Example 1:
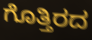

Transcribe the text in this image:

ಗೊತ್ತಿರದ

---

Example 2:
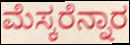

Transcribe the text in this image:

ಮೆಸ್ಕರೆನ್ನಾರ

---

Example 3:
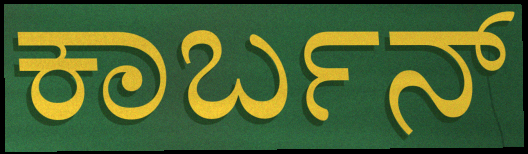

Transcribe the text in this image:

ಕಾರ್ಬನ್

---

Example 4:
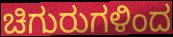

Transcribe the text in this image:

ಚಿಗುರುಗಳಿಂದ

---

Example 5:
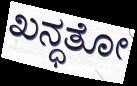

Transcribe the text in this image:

ಖನ್ಧತೋ